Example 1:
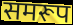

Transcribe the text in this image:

समरूप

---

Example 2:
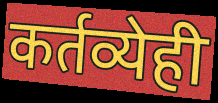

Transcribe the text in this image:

कर्तव्येही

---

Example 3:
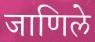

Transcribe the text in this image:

जाणिले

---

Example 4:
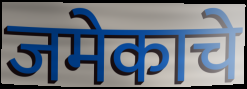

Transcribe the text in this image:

जमेकाचे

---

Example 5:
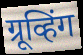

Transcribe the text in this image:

ग्रूव्हिंग